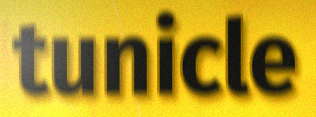
tunicle